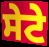
ਸੇਟੇ